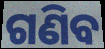
ଗଣିବ